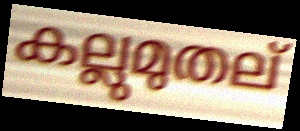
കല്ലുമുതല്